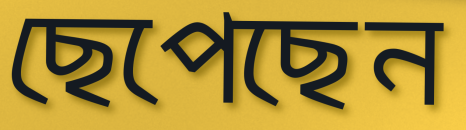
ছেপেছেন